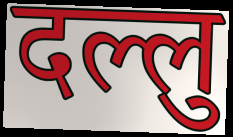
दल्लु